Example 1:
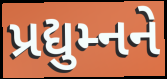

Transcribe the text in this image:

પ્રદ્યુમ્નને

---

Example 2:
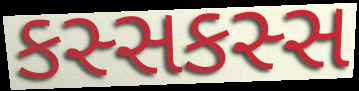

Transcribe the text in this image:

કસ્સકસ્સ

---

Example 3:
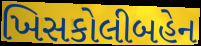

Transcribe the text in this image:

ખિસકોલીબહેન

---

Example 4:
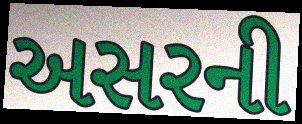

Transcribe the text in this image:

અસરની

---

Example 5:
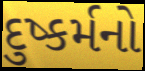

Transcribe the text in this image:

દુષ્કર્મનો